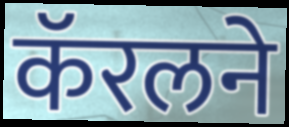
कॅरलने